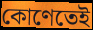
কোণেতেই